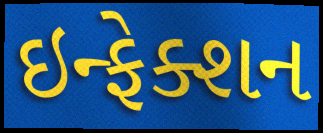
ઇન્ફેક્શન